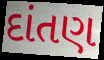
દાંતણ